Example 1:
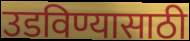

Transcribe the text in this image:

उडविण्यासाठी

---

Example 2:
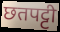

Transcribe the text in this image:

छतपट्टी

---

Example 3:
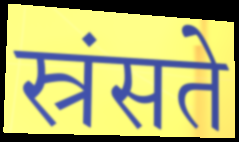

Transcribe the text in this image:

स्रंसते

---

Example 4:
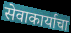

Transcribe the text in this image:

सेवाकार्याचा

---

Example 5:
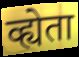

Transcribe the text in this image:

व्ह्येता